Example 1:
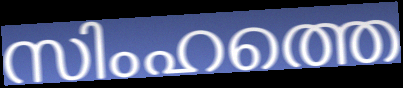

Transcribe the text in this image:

സിംഹത്തെ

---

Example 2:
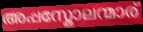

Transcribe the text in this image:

അപ്പസ്തോലന്മാര്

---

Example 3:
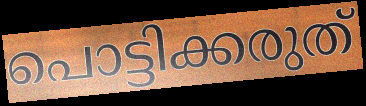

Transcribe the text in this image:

പൊട്ടിക്കരുത്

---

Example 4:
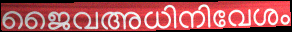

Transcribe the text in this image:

ജൈവഅധിനിവേശം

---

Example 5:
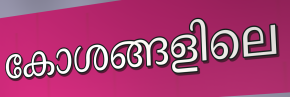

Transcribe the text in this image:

കോശങ്ങളിലെ